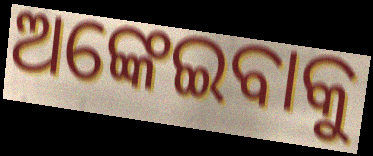
ଅଙ୍କେଇବାକୁ